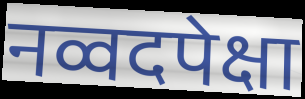
नव्वदपेक्षा